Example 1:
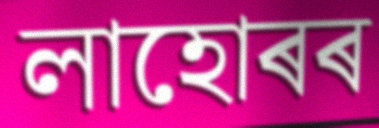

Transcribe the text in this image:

লাহোৰৰ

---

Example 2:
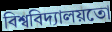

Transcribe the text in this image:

বিশ্ববিদ্য়ালয়তো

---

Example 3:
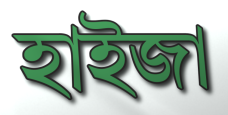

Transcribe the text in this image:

হাইজা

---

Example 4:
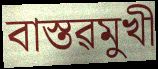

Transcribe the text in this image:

বাস্তৱমুখী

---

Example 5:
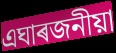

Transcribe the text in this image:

এঘাৰজনীয়া